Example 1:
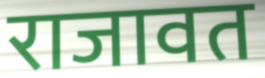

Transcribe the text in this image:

राजावत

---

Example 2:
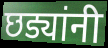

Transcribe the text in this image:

छड्यांनी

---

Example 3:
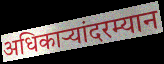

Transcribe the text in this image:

अधिकाऱ्यांदरम्यान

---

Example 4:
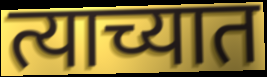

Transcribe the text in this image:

त्याच्यात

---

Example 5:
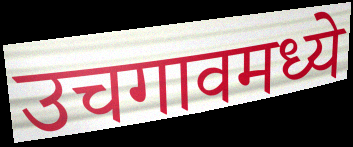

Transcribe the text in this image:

उचगावमध्ये